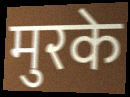
मुरके